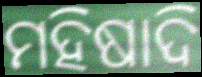
ମହିଷାଦି